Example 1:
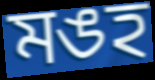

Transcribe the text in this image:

মঙহ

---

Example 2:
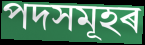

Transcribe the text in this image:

পদসমূহৰ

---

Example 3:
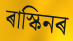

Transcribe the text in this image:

ৰাস্কিনৰ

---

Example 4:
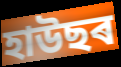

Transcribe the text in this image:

হাউছৰ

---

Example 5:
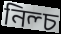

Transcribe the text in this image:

নিল্চ